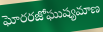
ఘోరరజోఘుష్యమాణ